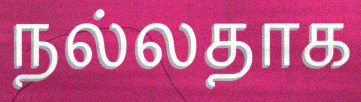
நல்லதாக